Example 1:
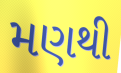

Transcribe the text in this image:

મણથી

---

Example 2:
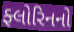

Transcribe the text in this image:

ફ્લોરિનનો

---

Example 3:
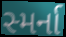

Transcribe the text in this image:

સ્મર્ના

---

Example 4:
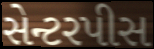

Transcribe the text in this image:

સેન્ટરપીસ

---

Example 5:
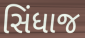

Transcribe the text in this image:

સિંધાજ